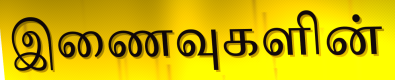
இணைவுகளின்